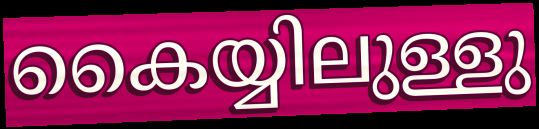
കൈയ്യിലുള്ളു